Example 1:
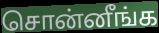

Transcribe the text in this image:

சொன்னீங்க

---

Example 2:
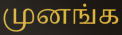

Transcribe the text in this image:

முனங்க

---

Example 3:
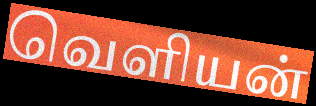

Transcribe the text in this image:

வெளியன்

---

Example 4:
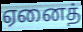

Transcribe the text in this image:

ஏனைத்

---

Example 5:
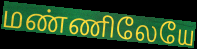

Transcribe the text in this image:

மண்ணிலேயே